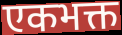
एकभक्त